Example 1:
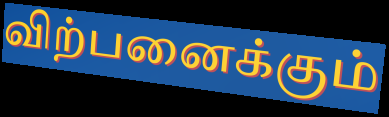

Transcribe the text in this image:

விற்பனைக்கும்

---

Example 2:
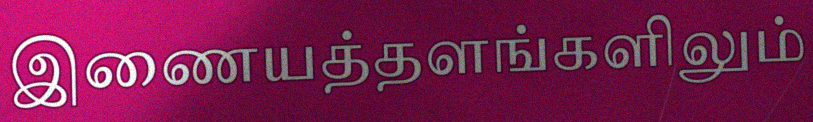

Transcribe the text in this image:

இணையத்தளங்களிலும்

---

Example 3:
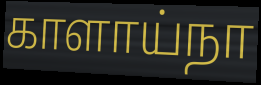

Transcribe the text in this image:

காளாய்நா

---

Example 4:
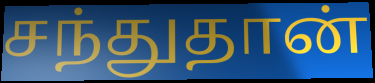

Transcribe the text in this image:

சந்துதான்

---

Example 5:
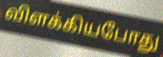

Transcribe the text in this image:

விளக்கியபோது